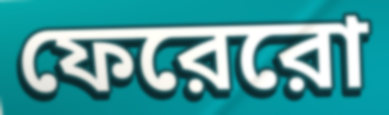
ফেরেরো